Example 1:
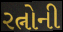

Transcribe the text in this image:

રત્નોની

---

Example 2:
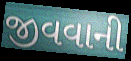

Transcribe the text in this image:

જીવવાની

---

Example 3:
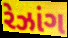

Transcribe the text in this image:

રેઝાંગ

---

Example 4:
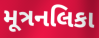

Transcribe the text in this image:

મૂત્રનલિકા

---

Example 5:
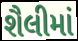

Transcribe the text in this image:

શૈલીમાં